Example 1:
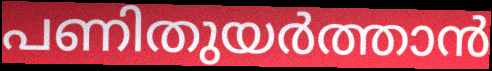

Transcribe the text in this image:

പണിതുയർത്താൻ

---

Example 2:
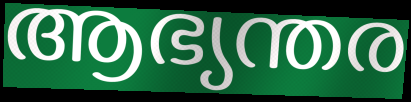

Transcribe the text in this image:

ആഭ്യന്തര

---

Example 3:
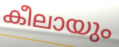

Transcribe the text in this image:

കീലായും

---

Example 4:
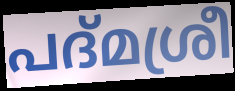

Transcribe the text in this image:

പദ്മശ്രീ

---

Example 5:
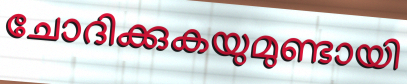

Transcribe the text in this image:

ചോദിക്കുകയുമുണ്ടായി